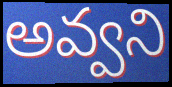
అవ్వని